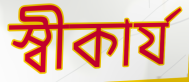
স্বীকার্য